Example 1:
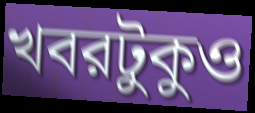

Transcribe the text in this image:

খবরটুকুও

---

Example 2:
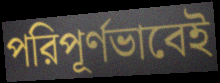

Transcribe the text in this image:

পরিপূর্ণভাবেই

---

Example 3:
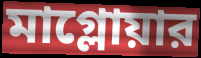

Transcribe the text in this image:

মাগ্লোয়ার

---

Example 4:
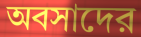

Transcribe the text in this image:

অবসাদের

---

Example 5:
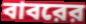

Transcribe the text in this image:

বাবরের